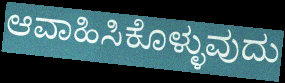
ಆವಾಹಿಸಿಕೊಳ್ಳುವುದು